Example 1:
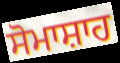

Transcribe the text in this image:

ਸੋਮਾਸ਼ਾਹ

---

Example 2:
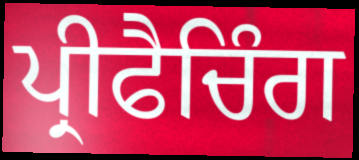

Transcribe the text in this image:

ਪ੍ਰੀਫੈਚਿੰਗ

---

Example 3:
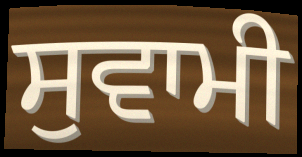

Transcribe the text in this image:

ਸੁਵਾਮੀ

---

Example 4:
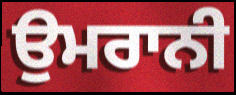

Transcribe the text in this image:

ਉਮਰਾਨੀ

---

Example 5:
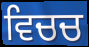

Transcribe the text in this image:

ਵਿਚਚ